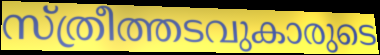
സ്ത്രീത്തടവുകാരുടെ